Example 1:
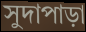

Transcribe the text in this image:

সুদাপাড়া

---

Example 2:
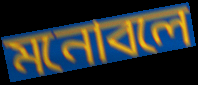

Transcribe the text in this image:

মনোবলে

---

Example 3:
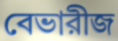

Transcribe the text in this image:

বেভারীজ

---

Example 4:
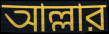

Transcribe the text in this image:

আল্লার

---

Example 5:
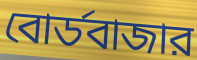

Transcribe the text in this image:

বোর্ডবাজার